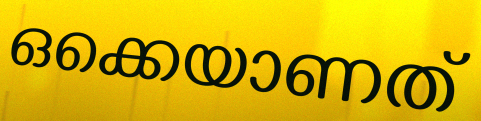
ഒക്കെയാണത്